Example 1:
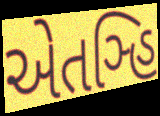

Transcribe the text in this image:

એતઞ્હિ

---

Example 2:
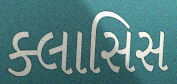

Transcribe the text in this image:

ક્લાસિસ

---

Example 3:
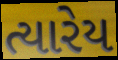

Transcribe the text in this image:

ત્યારેય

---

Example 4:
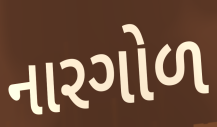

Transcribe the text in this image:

નારગોળ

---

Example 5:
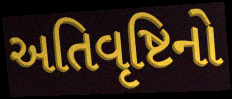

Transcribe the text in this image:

અતિવૃષ્ટિનો